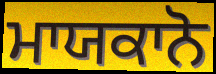
ਮਾਯਕਾਨੋ